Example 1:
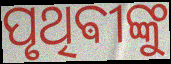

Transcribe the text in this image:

ପୃଥିଵୀଙ୍କୁ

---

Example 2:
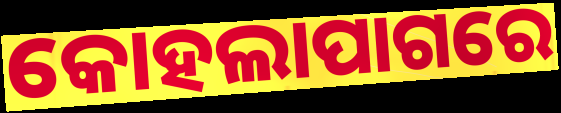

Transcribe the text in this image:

କୋହଲାପାଗରେ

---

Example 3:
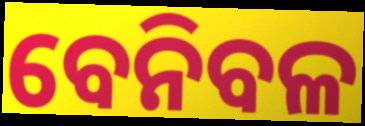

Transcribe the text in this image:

ବେନିବଳ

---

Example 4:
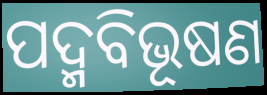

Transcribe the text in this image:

ପଦ୍ମବିଭୂଷଣ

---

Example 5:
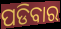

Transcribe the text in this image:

ପଡିବାର